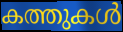
കത്തുകൾ